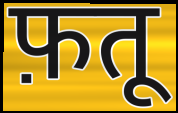
फ़तू